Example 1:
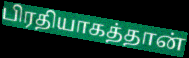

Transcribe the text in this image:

பிரதியாகத்தான்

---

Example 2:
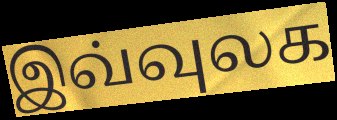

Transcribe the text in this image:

இவ்வுலக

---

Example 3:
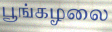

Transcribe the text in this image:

பூங்கழலை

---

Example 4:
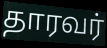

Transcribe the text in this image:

தாரவர்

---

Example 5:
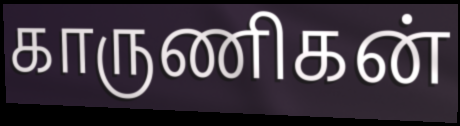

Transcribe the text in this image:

காருணிகன்